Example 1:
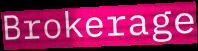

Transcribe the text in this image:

Brokerage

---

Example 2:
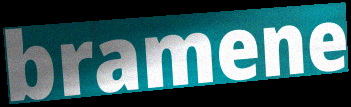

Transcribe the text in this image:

bramene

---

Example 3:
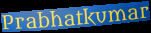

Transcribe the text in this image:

Prabhatkumar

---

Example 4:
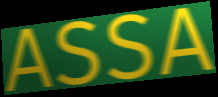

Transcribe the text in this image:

ASSA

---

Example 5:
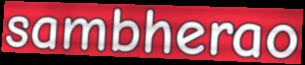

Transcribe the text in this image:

sambherao